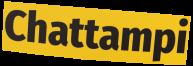
Chattampi